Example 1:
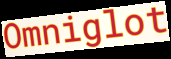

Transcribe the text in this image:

Omniglot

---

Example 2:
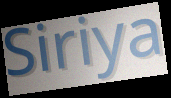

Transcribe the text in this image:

Siriya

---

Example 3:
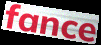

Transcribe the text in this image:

fance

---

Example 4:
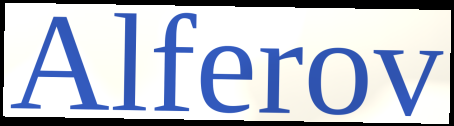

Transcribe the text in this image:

Alferov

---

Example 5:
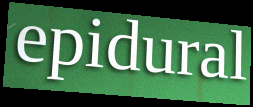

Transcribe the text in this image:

epidural